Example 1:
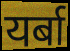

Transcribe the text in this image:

यर्बा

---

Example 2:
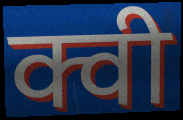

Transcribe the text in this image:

क्वी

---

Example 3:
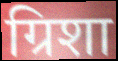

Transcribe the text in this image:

ग्रिशा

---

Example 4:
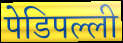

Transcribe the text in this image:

पेडिपल्ली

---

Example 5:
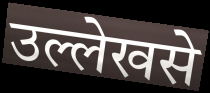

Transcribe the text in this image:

उल्लेखसे